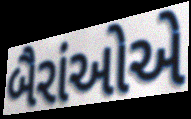
બૈરાંઓએ